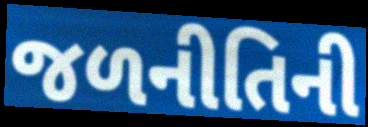
જળનીતિની